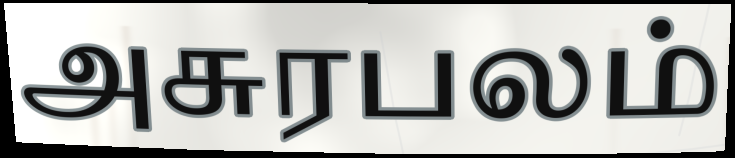
அசுரபலம்